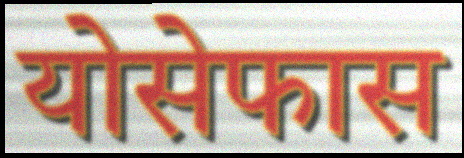
योसेफास